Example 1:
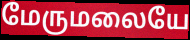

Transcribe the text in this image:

மேருமலையே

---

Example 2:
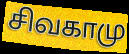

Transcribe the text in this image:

சிவகாமு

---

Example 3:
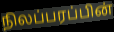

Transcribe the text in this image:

நிலப்பரப்பின்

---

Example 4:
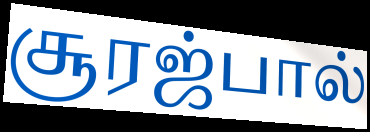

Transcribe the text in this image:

சூரஜ்பால்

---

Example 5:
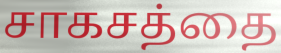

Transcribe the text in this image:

சாகசத்தை